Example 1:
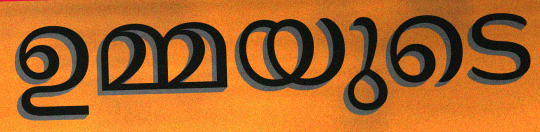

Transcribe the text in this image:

ഉമ്മയുടെ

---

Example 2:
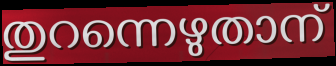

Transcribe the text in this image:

തുറന്നെഴുതാന്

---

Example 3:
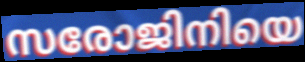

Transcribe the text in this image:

സരോജിനിയെ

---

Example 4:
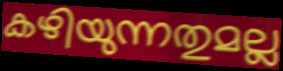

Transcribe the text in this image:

കഴിയുന്നതുമല്ല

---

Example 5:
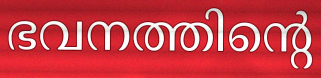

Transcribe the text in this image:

ഭവനത്തിന്റെ